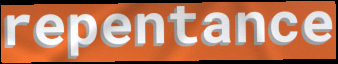
repentance